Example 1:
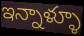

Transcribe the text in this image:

ఇన్నాళ్ళూ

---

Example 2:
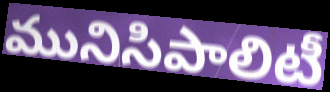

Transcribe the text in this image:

మునిసిపాలిటీ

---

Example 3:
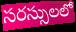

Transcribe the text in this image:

సరస్సులలో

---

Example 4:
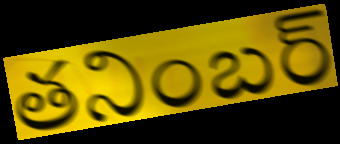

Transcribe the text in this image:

తనింబర్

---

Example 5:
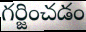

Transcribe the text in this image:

గర్జించడం